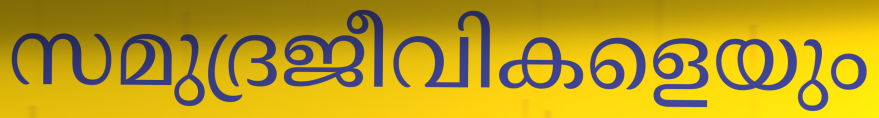
സമുദ്രജീവികളെയും